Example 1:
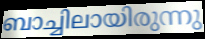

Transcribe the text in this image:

ബാച്ചിലായിരുന്നു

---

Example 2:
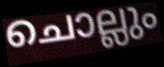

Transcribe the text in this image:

ചൊല്ലും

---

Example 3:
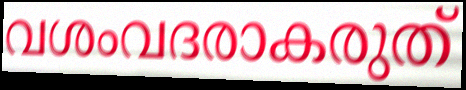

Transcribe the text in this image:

വശംവദരാകരുത്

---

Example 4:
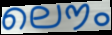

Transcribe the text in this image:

ലൌം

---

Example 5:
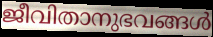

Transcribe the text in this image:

ജീവിതാനുഭവങ്ങൾ